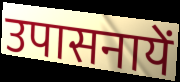
उपासनायें